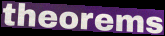
theorems